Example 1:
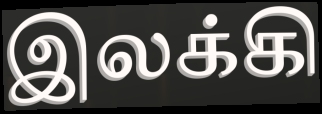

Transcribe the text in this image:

இலக்கி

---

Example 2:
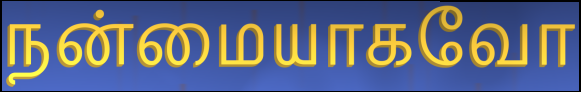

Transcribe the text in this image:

நன்மையாகவோ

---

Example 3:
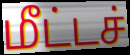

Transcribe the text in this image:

மீட்டச்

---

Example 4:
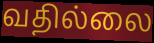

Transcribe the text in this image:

வதில்லை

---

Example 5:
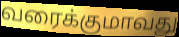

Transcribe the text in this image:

வரைக்குமாவது